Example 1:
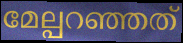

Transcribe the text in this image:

മേല്പറഞ്ഞത്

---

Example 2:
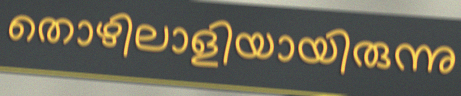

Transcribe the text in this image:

തൊഴിലാളിയായിരുന്നു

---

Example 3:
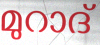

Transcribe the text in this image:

മുറാദ്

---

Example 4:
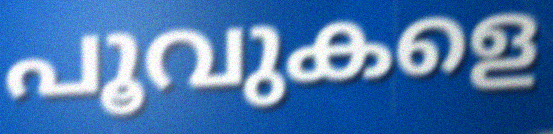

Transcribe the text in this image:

പൂവുകളെ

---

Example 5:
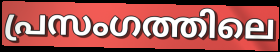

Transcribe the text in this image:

പ്രസംഗത്തിലെ